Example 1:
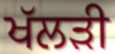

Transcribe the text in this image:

ਖੱਲੜੀ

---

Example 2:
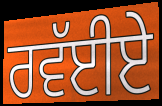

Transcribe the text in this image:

ਰਵੱਈਏ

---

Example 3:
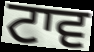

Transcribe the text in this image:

ਟਾਵ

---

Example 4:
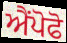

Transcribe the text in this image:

ਐਂਪੋਫੋ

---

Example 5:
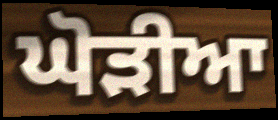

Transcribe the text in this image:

ਘੋੜੀਆ